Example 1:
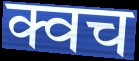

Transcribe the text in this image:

क्वच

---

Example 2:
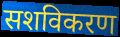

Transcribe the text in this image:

सशविकरण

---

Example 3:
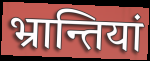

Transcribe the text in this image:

भ्रान्तियां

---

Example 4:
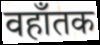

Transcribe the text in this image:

वहाँतक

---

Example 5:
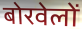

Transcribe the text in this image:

बोरवेलों